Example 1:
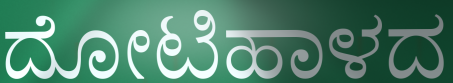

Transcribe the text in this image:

ದೋಟಿಹಾಳದ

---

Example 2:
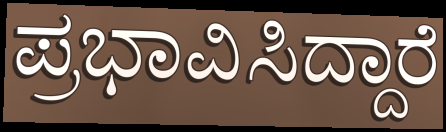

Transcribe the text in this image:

ಪ್ರಭಾವಿಸಿದ್ದಾರೆ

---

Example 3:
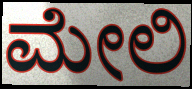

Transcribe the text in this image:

ಮೇಲಿ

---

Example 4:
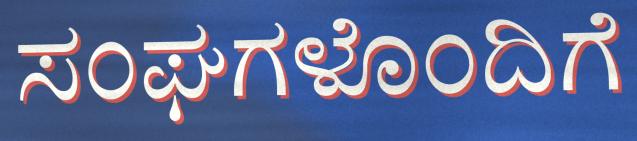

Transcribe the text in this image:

ಸಂಘಗಳೊಂದಿಗೆ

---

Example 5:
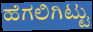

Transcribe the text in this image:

ಹೆಗಲಿಗಿಟ್ಟು